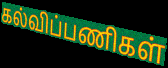
கல்விப்பணிகள்